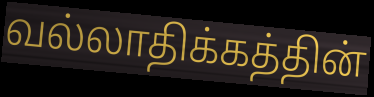
வல்லாதிக்கத்தின்